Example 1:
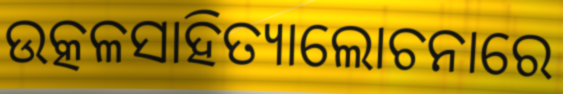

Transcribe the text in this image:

ଉତ୍କଳସାହିତ୍ୟାଲୋଚନାରେ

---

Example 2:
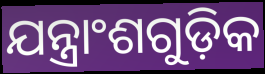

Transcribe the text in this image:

ଯନ୍ତ୍ରାଂଶଗୁଡ଼ିକ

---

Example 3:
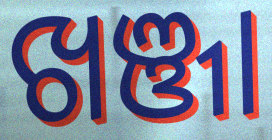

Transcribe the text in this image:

ଖଞ୍ଜା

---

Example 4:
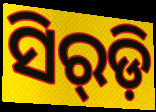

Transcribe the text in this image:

ସିର୍‌ଡ଼ି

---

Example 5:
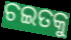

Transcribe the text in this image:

ଚଇତକୁ